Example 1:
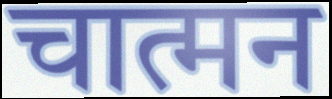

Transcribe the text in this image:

चात्मन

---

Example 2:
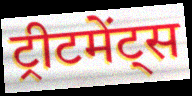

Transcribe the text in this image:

ट्रीटमेंट्स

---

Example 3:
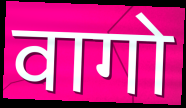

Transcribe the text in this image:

वागो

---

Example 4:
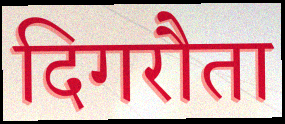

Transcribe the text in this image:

दिगरौता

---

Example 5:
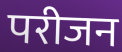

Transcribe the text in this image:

परीजन